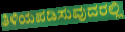
ತಿಳಿಯಪಡಿಸುವುದರಲ್ಲಿ